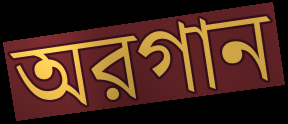
অরগান